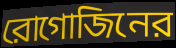
রোগোজিনের